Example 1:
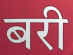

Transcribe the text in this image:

बरी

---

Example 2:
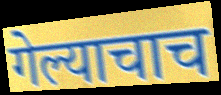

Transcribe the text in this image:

गेल्याचाच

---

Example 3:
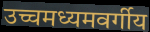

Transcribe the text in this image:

उच्चमध्यमवर्गीय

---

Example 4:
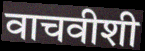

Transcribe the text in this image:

वाचवीशी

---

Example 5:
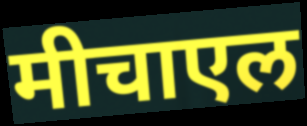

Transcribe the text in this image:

मीचाएल